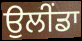
ਉਲੀਂਡਾ